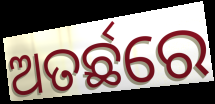
ଅତର୍ଛରେ